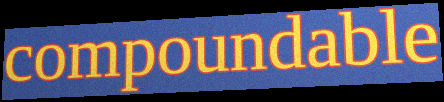
compoundable